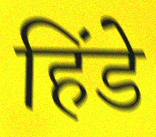
हिंडे